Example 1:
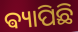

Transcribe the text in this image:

ଵ୍ୟାପିଛି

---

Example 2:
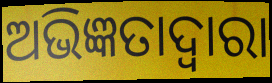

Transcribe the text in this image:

ଅଭିଜ୍ଞତାଦ୍ଵାରା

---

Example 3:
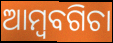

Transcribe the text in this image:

ଆମ୍ବବଗିଚା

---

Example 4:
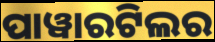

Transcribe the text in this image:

ପାୱାରଟିଲର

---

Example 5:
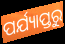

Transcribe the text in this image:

ପର୍ଯ୍ୟାପ୍ତରୁ